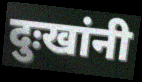
दुःखांनी